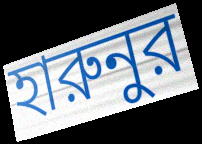
হারুনুর